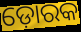
ଡ଼ୋରକ